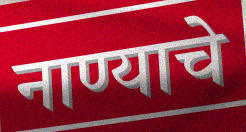
नाण्याचे